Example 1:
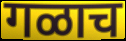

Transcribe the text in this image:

गळाच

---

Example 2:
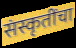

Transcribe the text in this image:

संस्कृतींचा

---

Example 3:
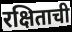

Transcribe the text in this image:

रक्षिताची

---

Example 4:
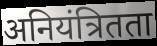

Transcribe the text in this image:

अनियंत्रितता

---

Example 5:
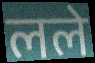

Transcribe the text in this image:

लले